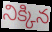
నిక్కిన